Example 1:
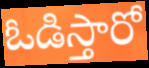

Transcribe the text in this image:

ఓడిస్తారో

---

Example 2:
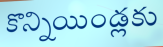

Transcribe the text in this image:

కొన్నియిండ్లకు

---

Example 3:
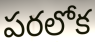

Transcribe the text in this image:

పరలోక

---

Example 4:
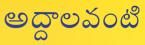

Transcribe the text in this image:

అద్దాలవంటి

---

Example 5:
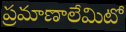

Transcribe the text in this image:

ప్రమాణాలేమిటో